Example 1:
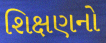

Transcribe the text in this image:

શિક્ષણનો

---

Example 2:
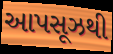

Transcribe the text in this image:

આપસૂઝથી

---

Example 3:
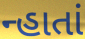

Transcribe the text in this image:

ન્હાતાં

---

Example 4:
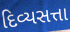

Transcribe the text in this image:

દિવ્યસત્તા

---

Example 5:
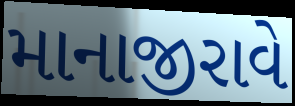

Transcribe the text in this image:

માનાજીરાવે